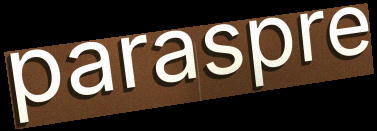
paraspre